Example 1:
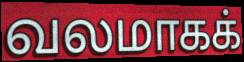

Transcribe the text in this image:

வலமாகக்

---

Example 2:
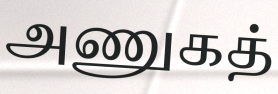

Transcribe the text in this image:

அணுகத்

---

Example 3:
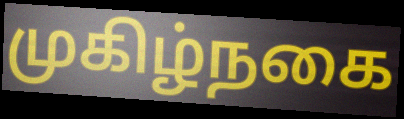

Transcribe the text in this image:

முகிழ்நகை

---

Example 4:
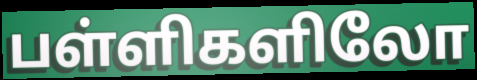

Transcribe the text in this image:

பள்ளிகளிலோ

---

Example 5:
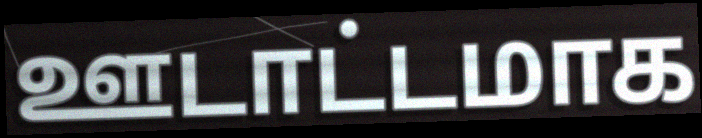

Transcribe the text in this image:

ஊடாட்டமாக